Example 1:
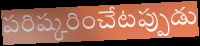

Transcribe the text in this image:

పరిష్కరించేటప్పుడు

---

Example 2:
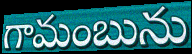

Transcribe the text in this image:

గామంబును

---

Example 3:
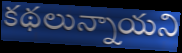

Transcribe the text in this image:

కథలున్నాయని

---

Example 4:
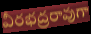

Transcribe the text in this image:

వీరభద్రరావుగా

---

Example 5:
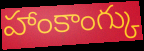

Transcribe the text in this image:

హాంకాంగ్కు